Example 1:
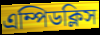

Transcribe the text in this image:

এম্পিডক্লিস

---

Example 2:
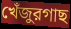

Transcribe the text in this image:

খেঁজুরগাছ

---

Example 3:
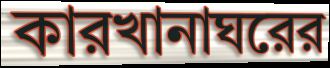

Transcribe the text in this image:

কারখানাঘরের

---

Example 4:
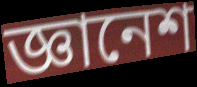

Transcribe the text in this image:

জ্ঞানেশ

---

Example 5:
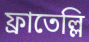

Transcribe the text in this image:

ফ্রাতেল্লি